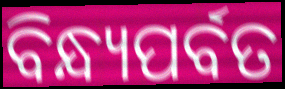
ବିନ୍ଧ୍ୟପର୍ବତ